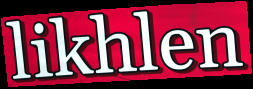
likhlen